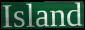
Island